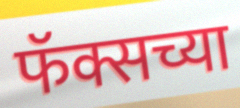
फॅक्सच्या